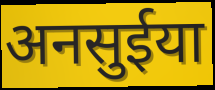
अनसुईया